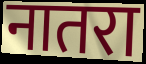
नातरा